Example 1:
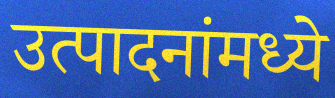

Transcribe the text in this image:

उत्पादनांमध्ये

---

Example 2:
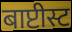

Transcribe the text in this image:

बाप्टीस्ट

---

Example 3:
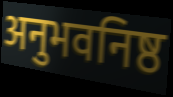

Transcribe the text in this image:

अनुभवनिष्ठ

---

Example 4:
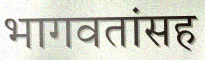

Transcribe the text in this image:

भागवतांसह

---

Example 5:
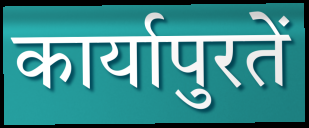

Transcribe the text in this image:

कार्यापुरतें